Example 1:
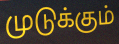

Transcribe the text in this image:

முடுக்கும்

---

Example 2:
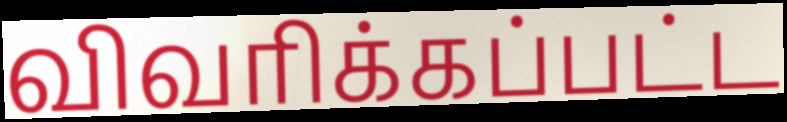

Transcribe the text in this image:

விவரிக்கப்பட்ட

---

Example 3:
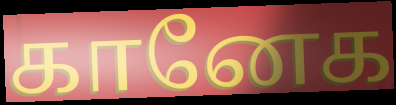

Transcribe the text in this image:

கானேக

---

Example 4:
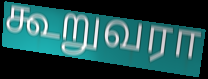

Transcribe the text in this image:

கூறுவரா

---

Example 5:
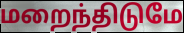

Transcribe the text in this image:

மறைந்திடுமே